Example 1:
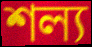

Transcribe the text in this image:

শল্য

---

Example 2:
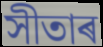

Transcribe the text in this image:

সীতাৰ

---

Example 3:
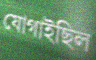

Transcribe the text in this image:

যোগাইছিল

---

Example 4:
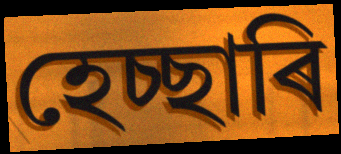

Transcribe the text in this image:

হেচ্ছাৰি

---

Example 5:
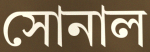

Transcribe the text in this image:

সোনাল